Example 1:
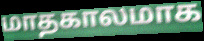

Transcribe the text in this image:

மாதகாலமாக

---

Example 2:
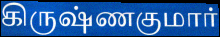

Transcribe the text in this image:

கிருஷ்ணகுமார்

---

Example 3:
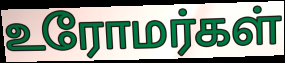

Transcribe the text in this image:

உரோமர்கள்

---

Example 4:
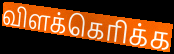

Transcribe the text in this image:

விளக்கெரிக்க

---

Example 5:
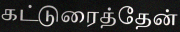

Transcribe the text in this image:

கட்டுரைத்தேன்